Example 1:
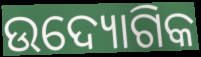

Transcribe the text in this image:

ଉଦ୍ୟୋଗିକ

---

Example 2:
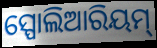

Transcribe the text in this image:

ସ୍ପୋଲିଆରିୟମ୍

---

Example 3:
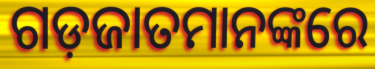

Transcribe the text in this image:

ଗଡ଼ଜାତମାନଙ୍କରେ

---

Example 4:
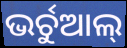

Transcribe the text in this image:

ଭର୍ଚୁଆଲ୍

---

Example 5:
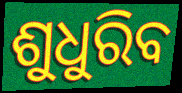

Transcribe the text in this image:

ଶୁଧୁରିବ